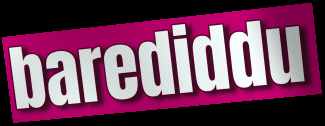
barediddu